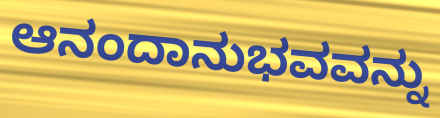
ಆನಂದಾನುಭವವನ್ನು